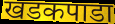
खडकपाडा